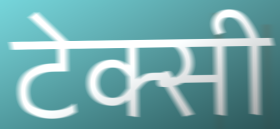
टेक्सी